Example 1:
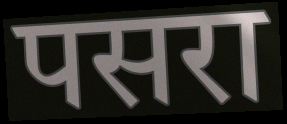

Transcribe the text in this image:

पसरा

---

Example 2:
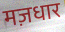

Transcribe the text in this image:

मज़धार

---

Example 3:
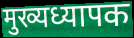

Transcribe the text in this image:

मुख्यध्यापक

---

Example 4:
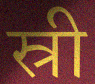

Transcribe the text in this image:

स्री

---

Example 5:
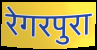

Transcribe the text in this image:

रेगरपुरा